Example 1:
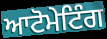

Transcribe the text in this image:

ਆਟੋਮੇਟਿੰਗ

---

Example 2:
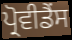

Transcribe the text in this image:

ਪ੍ਰੋਵੀਡੈਂਸ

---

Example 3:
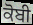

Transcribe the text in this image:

ਕੋਬੀ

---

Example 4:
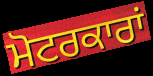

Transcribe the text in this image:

ਮੋਟਰਕਾਰਾਂ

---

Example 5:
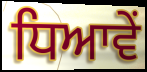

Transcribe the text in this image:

ਧਿਆਵੇਂ